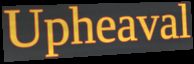
Upheaval